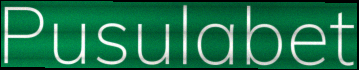
Pusulabet